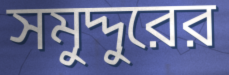
সমুদ্দুরের